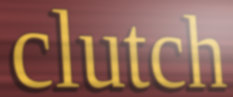
clutch